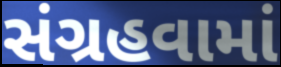
સંગ્રહવામાં